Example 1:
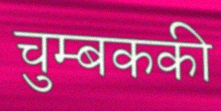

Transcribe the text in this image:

चुम्बककी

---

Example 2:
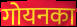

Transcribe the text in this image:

गोयनका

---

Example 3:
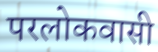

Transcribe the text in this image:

परलोकवासी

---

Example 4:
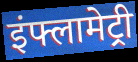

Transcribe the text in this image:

इंफ्लामेट्री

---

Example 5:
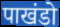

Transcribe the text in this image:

पाखंडो